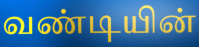
வண்டியின்